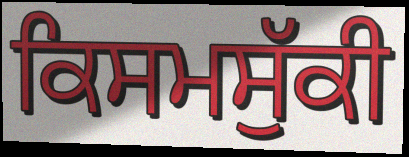
ਕਿਸਮਸੁੱਕੀ